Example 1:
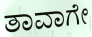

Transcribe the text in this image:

ತಾವಾಗೇ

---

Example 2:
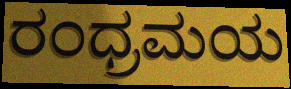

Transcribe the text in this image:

ರಂಧ್ರಮಯ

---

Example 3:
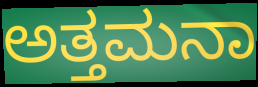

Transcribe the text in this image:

ಅತ್ತಮನಾ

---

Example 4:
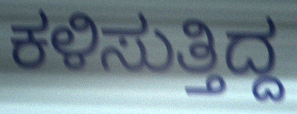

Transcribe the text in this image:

ಕಳಿಸುತ್ತಿದ್ದ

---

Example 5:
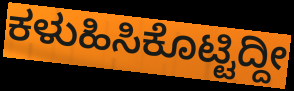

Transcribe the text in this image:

ಕಳುಹಿಸಿಕೊಟ್ಟಿದ್ದೀ